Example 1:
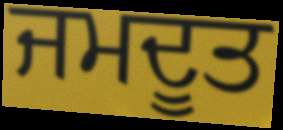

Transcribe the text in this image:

ਜਮਦੂਤ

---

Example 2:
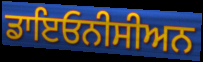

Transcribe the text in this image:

ਡਾਇਓਨੀਸੀਅਨ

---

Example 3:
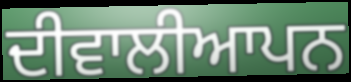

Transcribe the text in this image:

ਦੀਵਾਲੀਆਪਨ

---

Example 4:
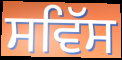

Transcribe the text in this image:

ਸਵਿੱਸ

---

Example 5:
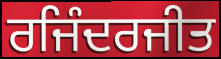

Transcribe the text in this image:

ਰਜਿੰਦਰਜੀਤ